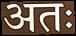
अतः